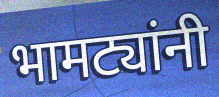
भामट्यांनी